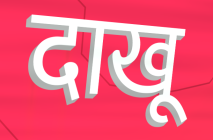
दाखू